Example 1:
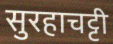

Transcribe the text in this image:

सुरहाचट्टी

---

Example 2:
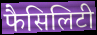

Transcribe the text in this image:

फैसिलिटी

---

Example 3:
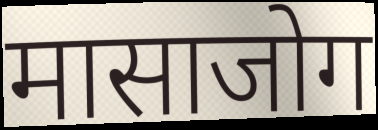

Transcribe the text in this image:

मासाजोग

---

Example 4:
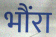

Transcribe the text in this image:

भौंरा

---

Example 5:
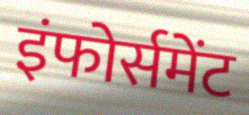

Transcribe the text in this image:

इंफोर्समेंट